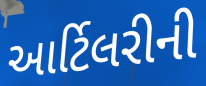
આર્ટિલરીની